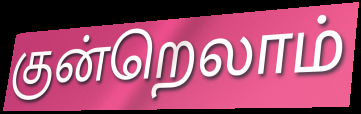
குன்றெலாம்